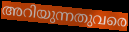
അറിയുന്നതുവരെ